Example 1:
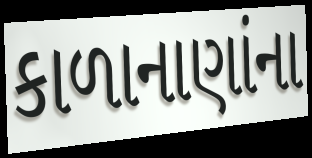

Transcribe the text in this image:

કાળાનાણાંના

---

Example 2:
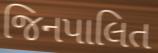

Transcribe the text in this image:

જિનપાલિત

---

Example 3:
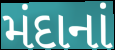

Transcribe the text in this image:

મંદાનાં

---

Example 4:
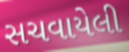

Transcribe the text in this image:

સચવાયેલી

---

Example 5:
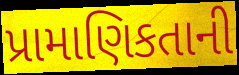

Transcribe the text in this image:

પ્રામાણિકતાની